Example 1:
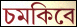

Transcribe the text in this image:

চমকিবে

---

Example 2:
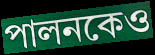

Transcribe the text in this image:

পালনকেও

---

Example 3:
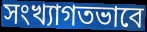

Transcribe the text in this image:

সংখ্যাগতভাবে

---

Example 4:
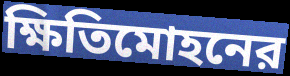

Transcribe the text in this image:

ক্ষিতিমোহনের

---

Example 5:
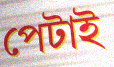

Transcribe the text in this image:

পেটাই